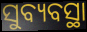
ସୁବ୍ୟବସ୍ଥା